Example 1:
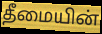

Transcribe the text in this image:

தீமையின்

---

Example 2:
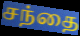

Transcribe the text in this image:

சந்தை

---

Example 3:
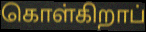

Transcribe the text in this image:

கொள்கிறாப்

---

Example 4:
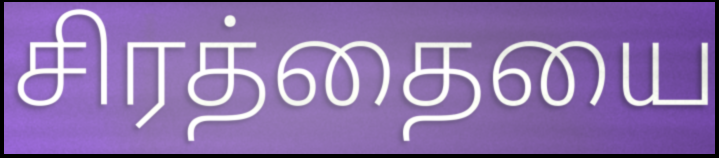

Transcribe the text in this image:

சிரத்தையை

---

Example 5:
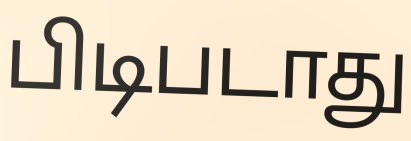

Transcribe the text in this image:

பிடிபடாது